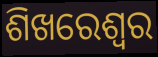
ଶିଖରେଶ୍ୱର